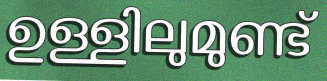
ഉള്ളിലുമുണ്ട്